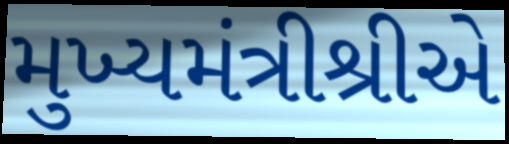
મુખ્યમંત્રીશ્રીએ